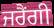
ਜਰੈਂਗੀ